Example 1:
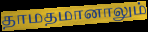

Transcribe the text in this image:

தாமதமானாலும்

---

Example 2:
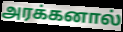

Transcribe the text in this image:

அரக்கனால்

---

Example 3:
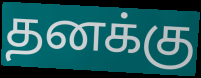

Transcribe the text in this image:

தனக்கு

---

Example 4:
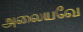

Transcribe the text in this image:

அலையவே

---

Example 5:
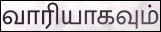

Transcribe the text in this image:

வாரியாகவும்